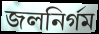
জলনির্গম